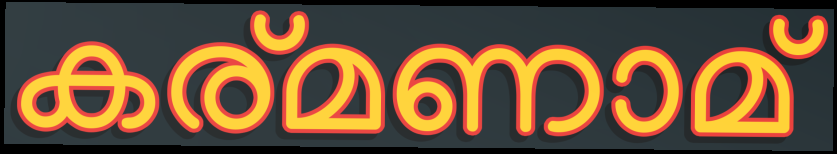
കര്മണാമ്